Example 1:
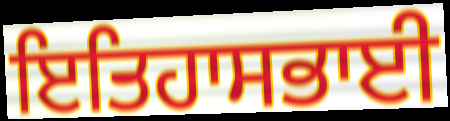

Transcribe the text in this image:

ਇਤਿਹਾਸਭਾਈ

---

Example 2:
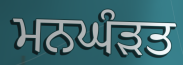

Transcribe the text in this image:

ਮਨਘੰੜਤ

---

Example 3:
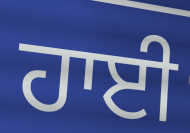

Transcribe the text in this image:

ਹਾਈ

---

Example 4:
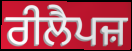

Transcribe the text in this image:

ਰੀਲੈਪਜ਼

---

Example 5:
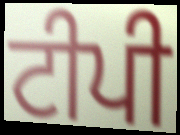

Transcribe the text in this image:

ਟੀਪੀ